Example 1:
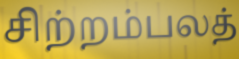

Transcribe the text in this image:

சிற்றம்பலத்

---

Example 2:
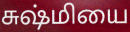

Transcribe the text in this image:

சுஷ்மியை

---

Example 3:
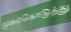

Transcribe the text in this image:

முகம்கொடுத்து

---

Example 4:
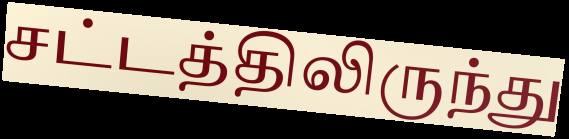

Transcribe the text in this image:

சட்டத்திலிருந்து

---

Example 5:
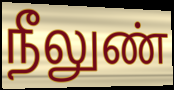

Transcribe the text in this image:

நீலுண்